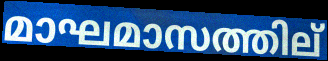
മാഘമാസത്തില്